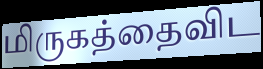
மிருகத்தைவிட